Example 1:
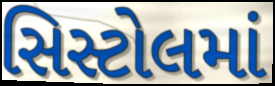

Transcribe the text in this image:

સિસ્ટોલમાં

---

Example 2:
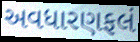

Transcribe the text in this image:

અવધારણફલં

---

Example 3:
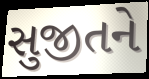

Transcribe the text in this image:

સુજીતને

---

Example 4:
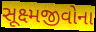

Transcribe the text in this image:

સૂક્ષ્મજીવોના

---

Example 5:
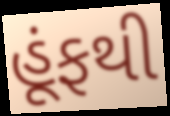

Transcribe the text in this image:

હૂંફથી